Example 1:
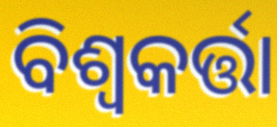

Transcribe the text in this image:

ବିଶ୍ୱକର୍ତ୍ତା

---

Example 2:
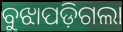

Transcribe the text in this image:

ବୁଝାପଡ଼ିଗଲା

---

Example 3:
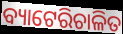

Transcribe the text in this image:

ବ୍ୟାଟେରିଚାଳିତ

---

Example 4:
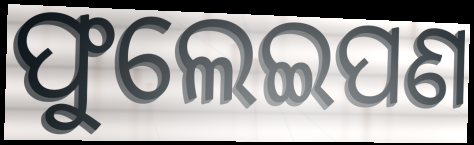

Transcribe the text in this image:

ଫୁଲେଇପଣ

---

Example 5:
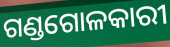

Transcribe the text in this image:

ଗଣ୍ଡଗୋଳକାରୀ